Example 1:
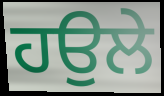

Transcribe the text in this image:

ਹਉਲੇ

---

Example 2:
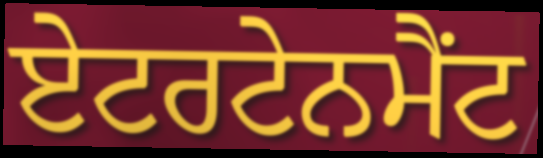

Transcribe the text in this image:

ਏਟਰਟੇਨਮੈਂਟ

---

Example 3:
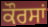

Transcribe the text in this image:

ਕੌਰਸਾਂ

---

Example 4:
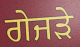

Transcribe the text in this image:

ਗੇਜੜੇ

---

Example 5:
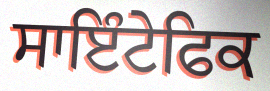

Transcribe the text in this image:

ਸਾਇੰਟੇਫਿਕ